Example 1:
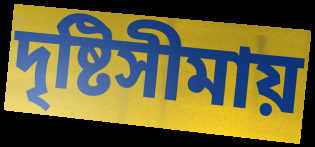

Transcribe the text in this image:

দৃষ্টিসীমায়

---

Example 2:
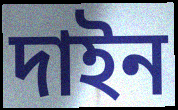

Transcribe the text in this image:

দাইন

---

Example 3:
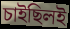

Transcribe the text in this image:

চাইছিলই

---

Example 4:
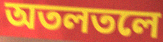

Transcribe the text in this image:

অতলতলে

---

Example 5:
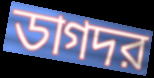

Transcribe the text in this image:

ডাগদর